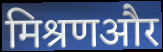
मिश्रणऔर